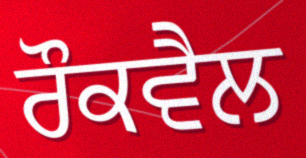
ਰੌਕਵੈਲ